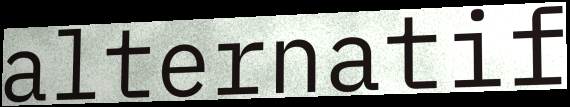
alternatif